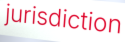
jurisdiction